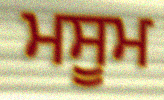
ਮਸੂਮ